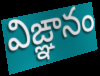
విఙ్ఞానం